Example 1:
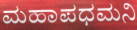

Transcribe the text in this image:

ಮಹಾಪಧಮನಿ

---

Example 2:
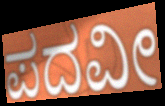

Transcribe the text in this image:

ಪದವೀ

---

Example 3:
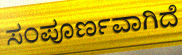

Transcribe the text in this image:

ಸಂಪೂರ್ಣವಾಗಿದೆ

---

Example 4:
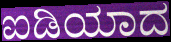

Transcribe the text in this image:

ಐಡಿಯಾದ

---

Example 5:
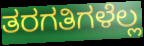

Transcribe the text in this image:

ತರಗತಿಗಳೆಲ್ಲ